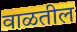
वाळतील